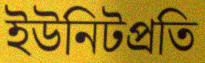
ইউনিটপ্রতি